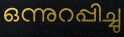
ഒന്നുറപ്പിച്ചു